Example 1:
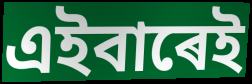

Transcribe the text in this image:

এইবাৰেই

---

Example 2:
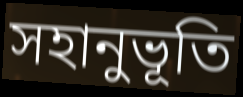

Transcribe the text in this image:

সহানুভূতি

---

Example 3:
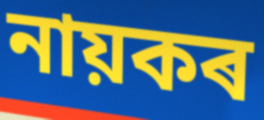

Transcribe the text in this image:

নায়কৰ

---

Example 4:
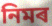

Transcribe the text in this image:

নিমৰ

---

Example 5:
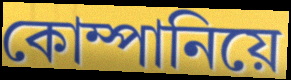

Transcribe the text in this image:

কোম্পানিয়ে